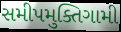
સમીપમુક્તિગામી